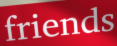
friends